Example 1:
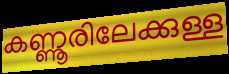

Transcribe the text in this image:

കണ്ണൂരിലേക്കുള്ള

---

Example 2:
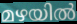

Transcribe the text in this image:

മഴയിൽ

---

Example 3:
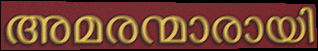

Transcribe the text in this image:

അമരന്മാരായി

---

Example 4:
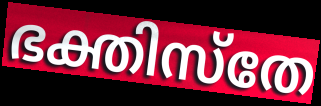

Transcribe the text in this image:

ഭക്തിസ്തേ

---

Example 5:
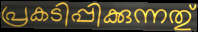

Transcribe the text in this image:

പ്രകടിപ്പിക്കുന്നതു്